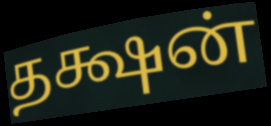
தக்ஷன்